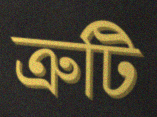
ত্ৰুটি